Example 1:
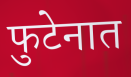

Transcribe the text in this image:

फुटेनात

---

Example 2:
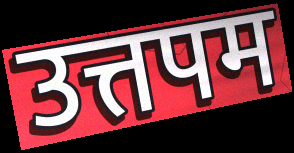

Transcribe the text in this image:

उत्तपम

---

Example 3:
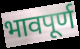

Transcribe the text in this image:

भावपूर्ण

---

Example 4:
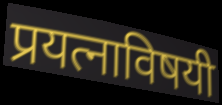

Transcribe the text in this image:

प्रयत्नाविषयी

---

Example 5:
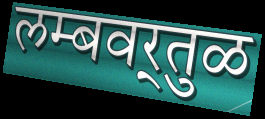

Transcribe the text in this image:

लम्बवर्तुळ